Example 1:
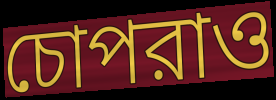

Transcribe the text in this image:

চোপরাও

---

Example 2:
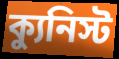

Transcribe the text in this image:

ক্যুনিস্ট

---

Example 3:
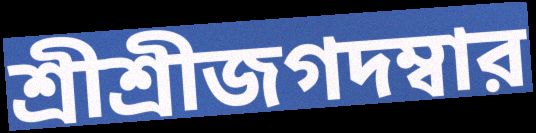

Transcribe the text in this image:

শ্রীশ্রীজগদম্বার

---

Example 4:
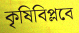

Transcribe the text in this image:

কৃষিবিপ্লবে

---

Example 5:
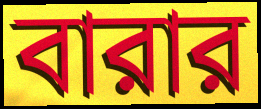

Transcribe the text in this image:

বারার